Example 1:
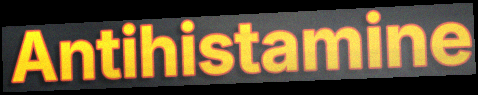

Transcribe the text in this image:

Antihistamine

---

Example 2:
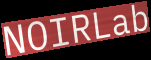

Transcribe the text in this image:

NOIRLab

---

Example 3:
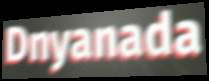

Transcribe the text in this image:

Dnyanada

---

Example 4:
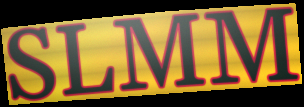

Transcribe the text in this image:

SLMM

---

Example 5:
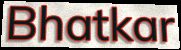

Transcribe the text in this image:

Bhatkar